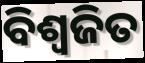
ବିଶ୍ଵଜିତ